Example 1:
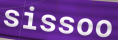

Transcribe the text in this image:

sissoo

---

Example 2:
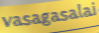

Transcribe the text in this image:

vasagasalai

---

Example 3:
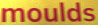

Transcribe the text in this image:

moulds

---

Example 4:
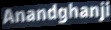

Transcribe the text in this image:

Anandghanji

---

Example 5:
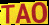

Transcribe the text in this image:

TAO